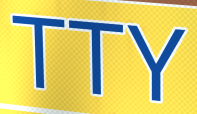
TTY